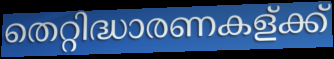
തെറ്റിദ്ധാരണകള്ക്ക്